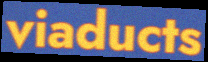
viaducts